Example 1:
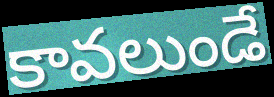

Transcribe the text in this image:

కావలుండే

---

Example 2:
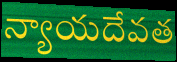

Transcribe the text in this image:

న్యాయదేవత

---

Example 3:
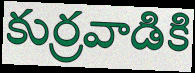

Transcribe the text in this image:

కుర్రవాడికి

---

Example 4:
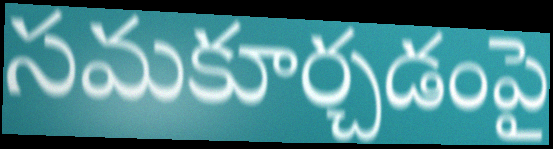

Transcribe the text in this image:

సమకూర్చడంపై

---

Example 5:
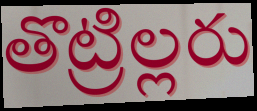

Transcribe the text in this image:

తొట్రిల్లరు